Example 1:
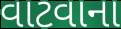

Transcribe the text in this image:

વાટવાના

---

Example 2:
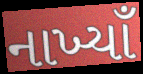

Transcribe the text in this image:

નાખ્યાઁ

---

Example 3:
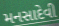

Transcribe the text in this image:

મનસાદેવી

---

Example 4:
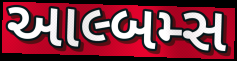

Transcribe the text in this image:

આલ્બમ્સ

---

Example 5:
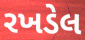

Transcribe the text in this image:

રખડેલ